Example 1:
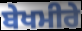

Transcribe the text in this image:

ਬੇਖਮੀਰੇ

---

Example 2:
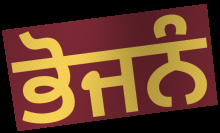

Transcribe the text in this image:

ਭੋਜਨੰ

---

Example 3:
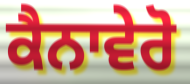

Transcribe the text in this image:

ਕੈਨਾਵੇਰੋ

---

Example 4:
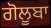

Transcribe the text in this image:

ਗੋਲੂਬਾ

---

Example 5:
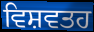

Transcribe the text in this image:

ਵਿਸ਼ਵਤਹ